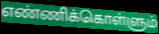
எண்ணிக்கொள்ளும்